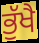
ਭੁੱਖੈ